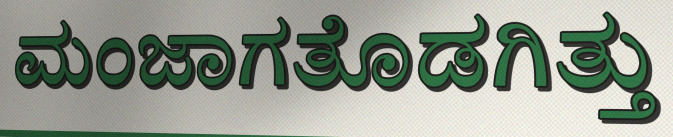
ಮಂಜಾಗತೊಡಗಿತ್ತು